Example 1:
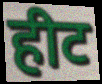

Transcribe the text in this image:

हीट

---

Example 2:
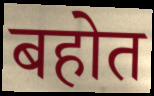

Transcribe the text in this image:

बहोत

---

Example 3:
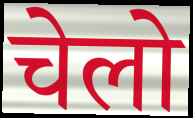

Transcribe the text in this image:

चेलो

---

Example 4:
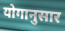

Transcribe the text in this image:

योगानुसार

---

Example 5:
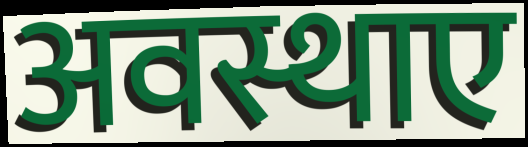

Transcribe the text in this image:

अवस्थाए